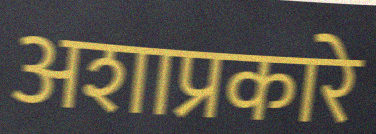
अशाप्रकारे